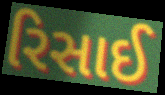
રિસાઈ